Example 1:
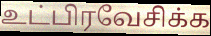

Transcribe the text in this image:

உட்பிரவேசிக்க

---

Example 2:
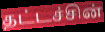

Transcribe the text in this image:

தட்டச்சின்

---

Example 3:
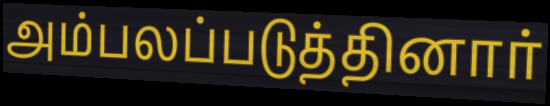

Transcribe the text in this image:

அம்பலப்படுத்தினார்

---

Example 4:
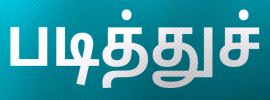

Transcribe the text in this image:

படித்துச்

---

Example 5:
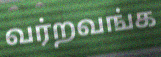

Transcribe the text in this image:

வர்றவங்க